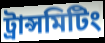
ট্রান্সমিটিং